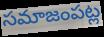
సమాజంపట్ల